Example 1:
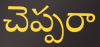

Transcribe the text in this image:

చెప్పరా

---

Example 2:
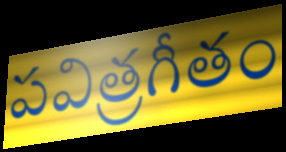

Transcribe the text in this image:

పవిత్రగీతం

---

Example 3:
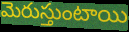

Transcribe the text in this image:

మెరుస్తుంటాయి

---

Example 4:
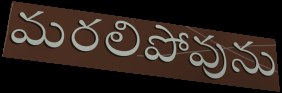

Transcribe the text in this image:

మరలిపోవును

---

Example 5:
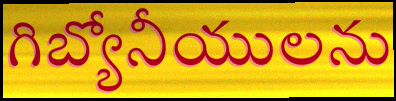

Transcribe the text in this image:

గిబ్యోనీయులను